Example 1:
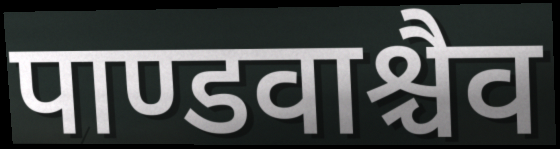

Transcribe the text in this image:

पाण्डवाश्चैव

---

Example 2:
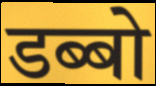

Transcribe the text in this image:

डब्बो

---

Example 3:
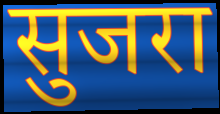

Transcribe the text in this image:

सुजरा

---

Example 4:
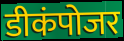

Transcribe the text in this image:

डीकंपोजर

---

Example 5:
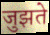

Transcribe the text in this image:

जुझते